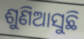
ଶୁଣିଆସୁଛି